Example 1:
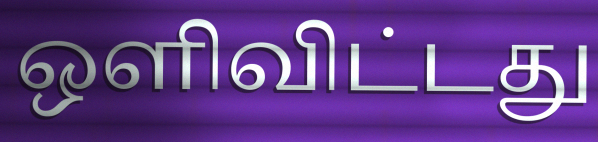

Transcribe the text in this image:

ஒளிவிட்டது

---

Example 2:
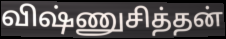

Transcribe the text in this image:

விஷ்ணுசித்தன்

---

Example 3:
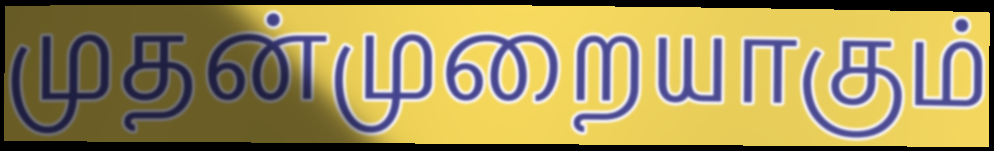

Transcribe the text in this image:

முதன்முறையாகும்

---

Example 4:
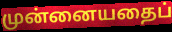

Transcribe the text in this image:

முன்னையதைப்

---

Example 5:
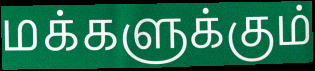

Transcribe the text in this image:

மக்களுக்கும்